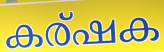
കര്ഷക